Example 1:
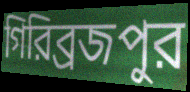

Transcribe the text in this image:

গিরিব্রজপুর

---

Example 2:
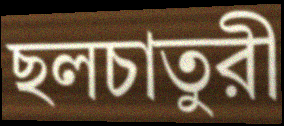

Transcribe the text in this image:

ছলচাতুরী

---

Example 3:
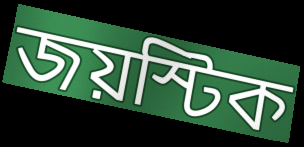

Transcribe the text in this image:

জয়স্টিক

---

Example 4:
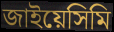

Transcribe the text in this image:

জাইয়েসিমি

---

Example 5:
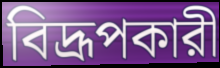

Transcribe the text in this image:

বিদ্রূপকারী